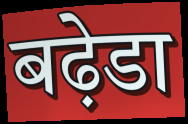
बढ़ेडा